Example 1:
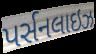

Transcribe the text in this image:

પર્સનલાઇઝ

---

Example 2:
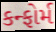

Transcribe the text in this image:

કન્ફોર્મ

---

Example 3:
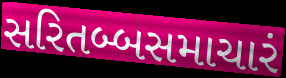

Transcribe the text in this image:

સરિતબ્બસમાચારં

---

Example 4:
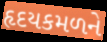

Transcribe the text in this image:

હૃદયકમળને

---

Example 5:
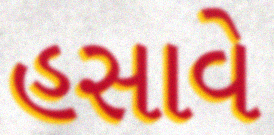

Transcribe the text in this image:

હસાવે